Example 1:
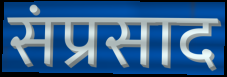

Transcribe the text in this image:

संप्रसाद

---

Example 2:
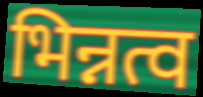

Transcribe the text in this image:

भिन्नत्व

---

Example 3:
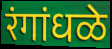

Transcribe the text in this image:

रंगांधळे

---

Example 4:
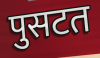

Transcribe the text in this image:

पुसटत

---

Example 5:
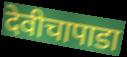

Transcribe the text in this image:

देवीचापाडा